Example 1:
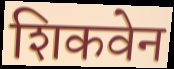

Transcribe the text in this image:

शिकवेन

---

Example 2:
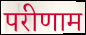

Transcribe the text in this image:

परीणाम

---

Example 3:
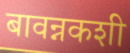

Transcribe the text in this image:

बावन्नकशी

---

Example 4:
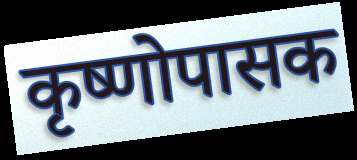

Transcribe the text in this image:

कृष्णोपासक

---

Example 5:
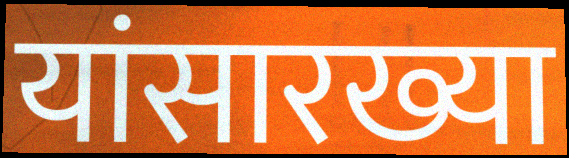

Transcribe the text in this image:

यांसारख्‍या